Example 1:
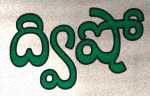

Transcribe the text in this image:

ద్విషో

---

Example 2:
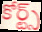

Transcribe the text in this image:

కోర్ట్స్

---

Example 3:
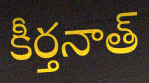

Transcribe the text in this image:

కీర్తనాత్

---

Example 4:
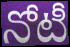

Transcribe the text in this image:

నోటీ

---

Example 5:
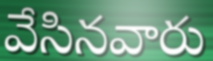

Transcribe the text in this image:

వేసినవారు